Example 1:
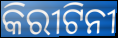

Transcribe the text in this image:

କିରୀଟିନୀ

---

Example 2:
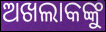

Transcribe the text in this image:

ଅଖଲାକଙ୍କୁ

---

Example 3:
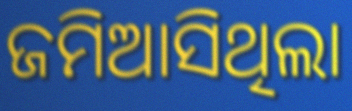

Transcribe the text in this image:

ଜମିଆସିଥିଲା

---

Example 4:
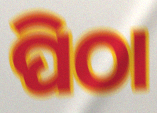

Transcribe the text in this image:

ପିଠା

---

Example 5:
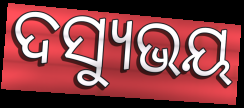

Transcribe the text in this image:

ଦସ୍ୟୁଭୟ